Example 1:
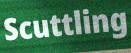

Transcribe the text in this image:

Scuttling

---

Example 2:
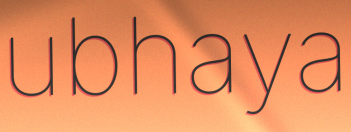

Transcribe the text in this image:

ubhaya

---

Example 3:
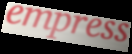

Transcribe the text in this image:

empress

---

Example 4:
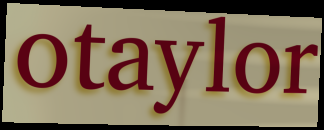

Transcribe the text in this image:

otaylor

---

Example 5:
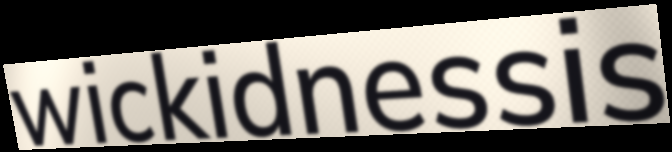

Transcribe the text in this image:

wickidnessis